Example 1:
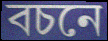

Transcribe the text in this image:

বচনে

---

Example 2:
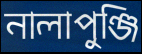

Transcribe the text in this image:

নালাপুঞ্জি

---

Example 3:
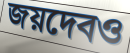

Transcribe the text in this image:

জয়দেবও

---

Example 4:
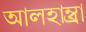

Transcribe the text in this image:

আলহাম্ব্রা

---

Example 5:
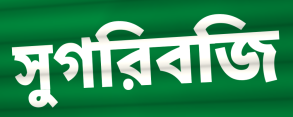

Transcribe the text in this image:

সুগরিবজি